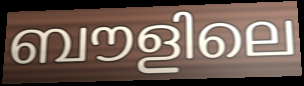
ബൗളിലെ